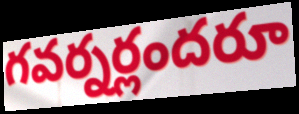
గవర్నర్లందరూ